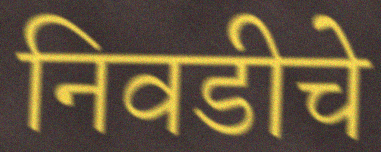
निवडीचे